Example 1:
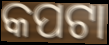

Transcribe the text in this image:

କପଟା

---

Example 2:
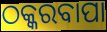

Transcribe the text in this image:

ଠକ୍କରବାପା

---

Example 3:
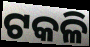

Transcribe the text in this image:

ଟକଳି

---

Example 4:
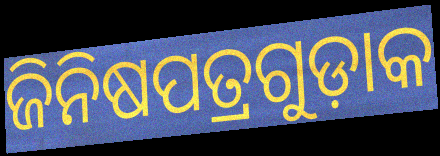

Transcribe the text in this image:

ଜିନିଷପତ୍ରଗୁଡ଼ାକ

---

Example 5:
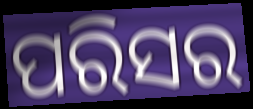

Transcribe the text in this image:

ପରିସର